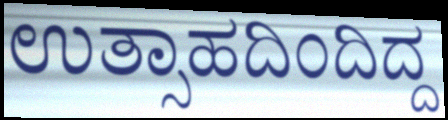
ಉತ್ಸಾಹದಿಂದಿದ್ದ